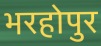
भरहोपुर